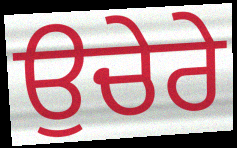
ਉਚੇਰੇ